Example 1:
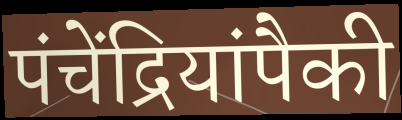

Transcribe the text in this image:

पंचेंद्रियांपैकी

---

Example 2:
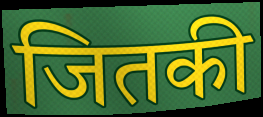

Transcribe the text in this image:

जितकी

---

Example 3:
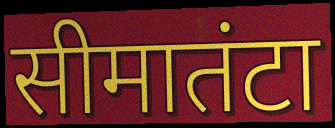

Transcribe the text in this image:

सीमातंटा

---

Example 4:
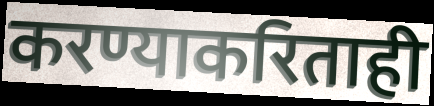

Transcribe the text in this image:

करण्याकरिताही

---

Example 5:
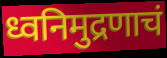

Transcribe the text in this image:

ध्वनिमुद्रणाचं